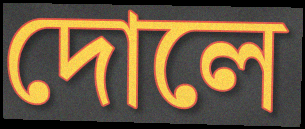
দোলে